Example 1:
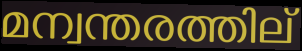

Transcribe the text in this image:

മന്വന്തരത്തില്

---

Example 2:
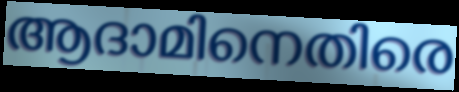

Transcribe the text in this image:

ആദാമിനെതിരെ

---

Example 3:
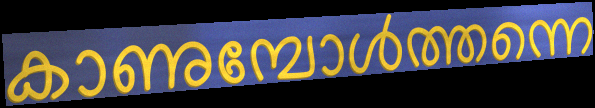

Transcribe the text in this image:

കാണുമ്പോൾത്തന്നെ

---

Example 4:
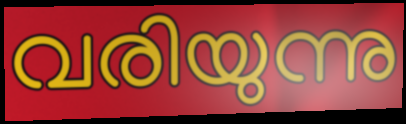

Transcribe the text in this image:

വരിയുന്നു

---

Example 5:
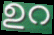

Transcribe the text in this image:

ഉറ